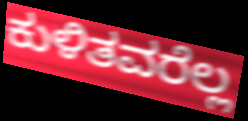
ಕುಳಿತವರೆಲ್ಲ